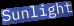
Sunlight